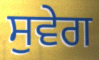
ਸੁਵੇਗ